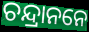
ଚନ୍ଦ୍ରାନନେ